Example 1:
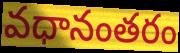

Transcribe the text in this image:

వధానంతరం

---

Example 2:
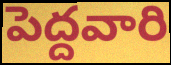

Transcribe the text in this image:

పెద్దవారి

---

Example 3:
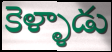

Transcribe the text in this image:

కెళ్ళాడు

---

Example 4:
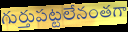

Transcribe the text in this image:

గుర్తుపట్టలేనంతగా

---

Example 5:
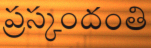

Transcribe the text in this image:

ప్రస్కందంతి